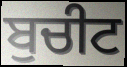
ਬੁਚੀਟ